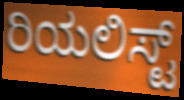
ರಿಯಲಿಸ್ಟ್